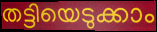
തട്ടിയെടുക്കാം